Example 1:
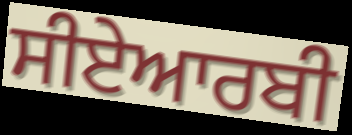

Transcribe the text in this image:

ਸੀਏਆਰਬੀ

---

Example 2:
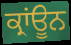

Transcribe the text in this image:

ਕ੍ਰਾਂਊਨ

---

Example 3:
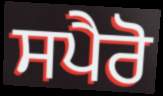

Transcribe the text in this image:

ਸਪੈਰੋ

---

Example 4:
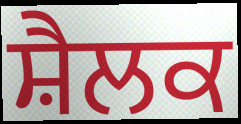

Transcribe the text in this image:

ਸ਼ੈਲਕ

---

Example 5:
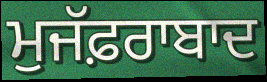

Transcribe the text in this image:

ਮੁਜੱਫ਼ਰਾਬਾਦ